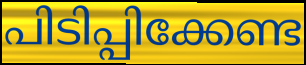
പിടിപ്പിക്കേണ്ട